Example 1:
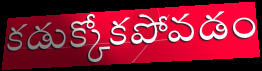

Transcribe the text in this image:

కడుక్కోకపోవడం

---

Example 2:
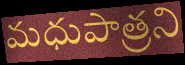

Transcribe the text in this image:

మధుపాత్రని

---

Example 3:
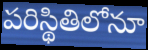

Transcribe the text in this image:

పరిస్థితిలోనూ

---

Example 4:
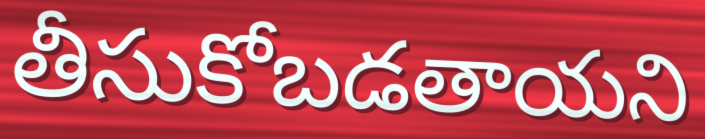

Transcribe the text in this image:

తీసుకోబడతాయని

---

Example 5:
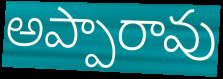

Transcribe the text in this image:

అప్పారావు